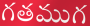
గతముగ